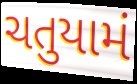
ચતુયામં